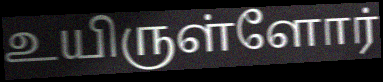
உயிருள்ளோர்